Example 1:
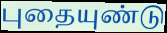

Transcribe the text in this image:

புதையுண்டு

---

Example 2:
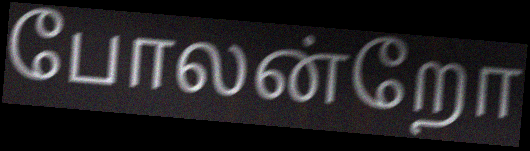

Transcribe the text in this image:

போலன்றோ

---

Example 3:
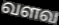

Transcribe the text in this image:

வளவ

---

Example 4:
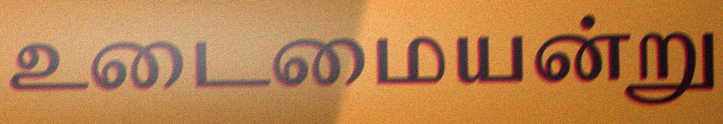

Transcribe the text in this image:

உடைமையன்று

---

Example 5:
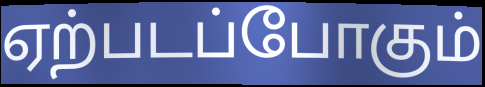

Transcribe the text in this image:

ஏற்படப்போகும்